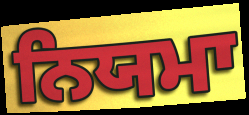
ਨਿਯਮਾ